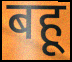
बहू